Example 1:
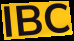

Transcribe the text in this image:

IBC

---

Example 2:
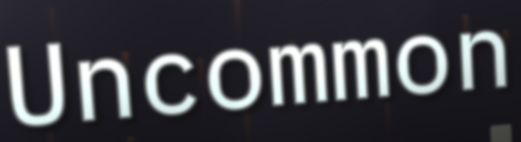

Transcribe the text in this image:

Uncommon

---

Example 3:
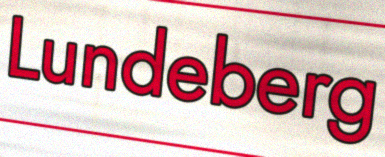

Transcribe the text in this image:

Lundeberg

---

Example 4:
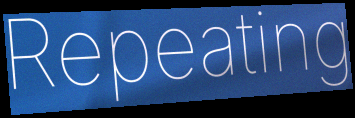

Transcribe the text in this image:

Repeating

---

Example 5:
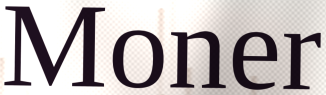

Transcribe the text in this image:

Moner